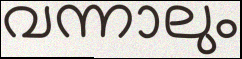
വന്നാലും